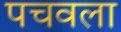
पचवला